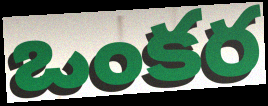
ఒంకర